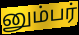
னும்பர்